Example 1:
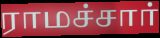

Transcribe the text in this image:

ராமச்சார்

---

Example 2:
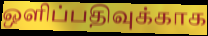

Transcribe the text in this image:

ஒளிப்பதிவுக்காக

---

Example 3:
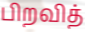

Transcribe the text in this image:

பிறவித்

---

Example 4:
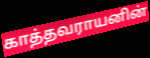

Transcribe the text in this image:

காத்தவராயனின்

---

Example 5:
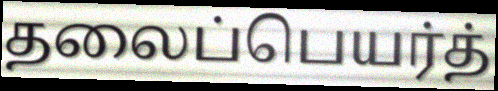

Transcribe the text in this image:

தலைப்பெயர்த்